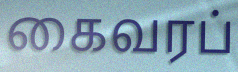
கைவரப்